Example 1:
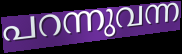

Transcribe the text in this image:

പറന്നുവന്ന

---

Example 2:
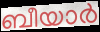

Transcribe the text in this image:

ബീയാർ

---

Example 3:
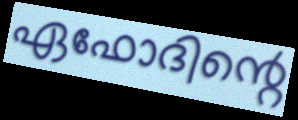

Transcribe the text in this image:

ഏഫോദിന്റെ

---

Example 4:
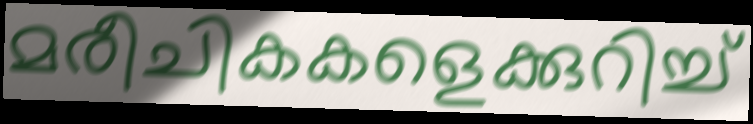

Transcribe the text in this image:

മരീചികകളെക്കുറിച്ച്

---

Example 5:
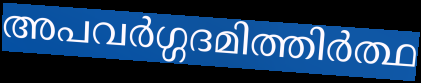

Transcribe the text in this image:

അപവർഗ്ഗദമിത്തിർത്ഥ